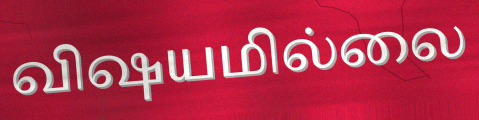
விஷயமில்லை